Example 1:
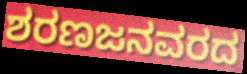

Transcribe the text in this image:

ಶರಣಜನವರದ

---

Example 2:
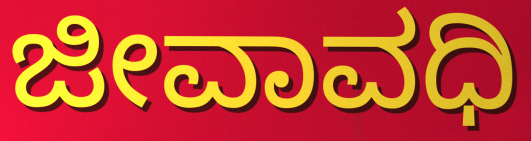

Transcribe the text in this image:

ಜೀವಾವಧಿ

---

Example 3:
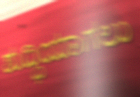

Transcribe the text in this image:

ಶುದ್ಧಿಯಾಗಲು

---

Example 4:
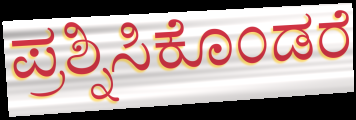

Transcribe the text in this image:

ಪ್ರಶ್ನಿಸಿಕೊಂಡರೆ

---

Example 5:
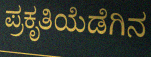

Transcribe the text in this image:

ಪ್ರಕೃತಿಯೆಡೆಗಿನ